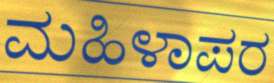
ಮಹಿಳಾಪರ